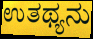
ಉತಥ್ಯನು